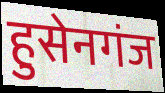
हुसेनगंज